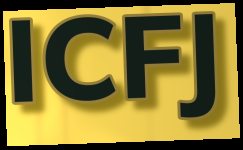
ICFJ